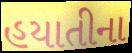
હયાતીના